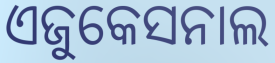
ଏଜୁକେସନାଲ